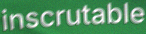
inscrutable